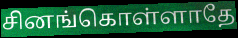
சினங்கொள்ளாதே